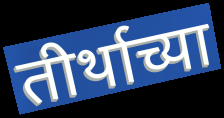
तीर्थाच्या